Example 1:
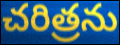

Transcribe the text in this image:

చరిత్రను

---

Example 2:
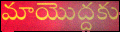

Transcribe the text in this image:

మాయొద్దకు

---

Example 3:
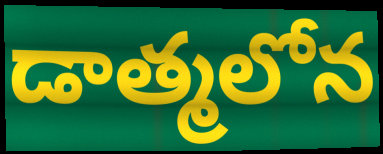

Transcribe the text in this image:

డాత్మలోన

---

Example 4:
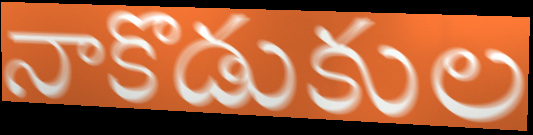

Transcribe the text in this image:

నాకొడుకుల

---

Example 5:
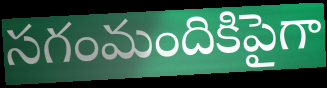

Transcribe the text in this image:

సగంమందికిపైగా